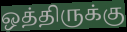
ஒத்திருக்கு